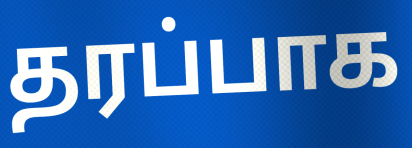
தரப்பாக